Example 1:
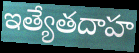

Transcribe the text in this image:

ఇత్యేతదాహ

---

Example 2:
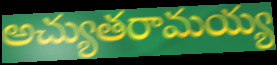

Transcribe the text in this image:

అచ్యుతరామయ్య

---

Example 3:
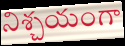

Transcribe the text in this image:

నిశ్చయంగా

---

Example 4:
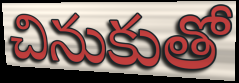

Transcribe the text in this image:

చినుకుతో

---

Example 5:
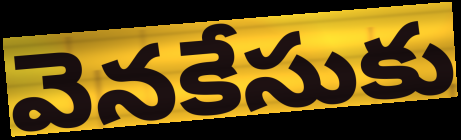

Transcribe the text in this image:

వెనకేసుకు